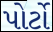
પોર્ટો